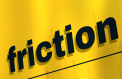
friction